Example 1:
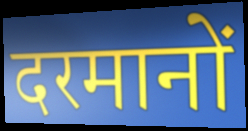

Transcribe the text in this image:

दरमानों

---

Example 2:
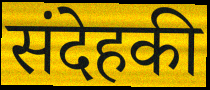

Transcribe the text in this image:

संदेहकी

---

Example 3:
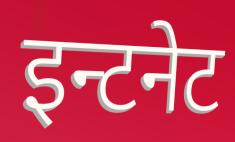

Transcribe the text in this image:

इन्टनेट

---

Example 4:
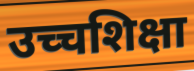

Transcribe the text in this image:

उच्चशिक्षा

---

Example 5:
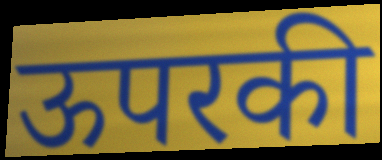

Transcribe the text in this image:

ऊपरकी